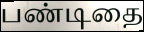
பண்டிதை